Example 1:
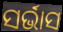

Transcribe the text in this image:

ସର୍ଭାସ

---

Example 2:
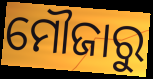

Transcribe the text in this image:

ମୌଜାରୁ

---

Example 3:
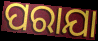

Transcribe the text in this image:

ପରାଯା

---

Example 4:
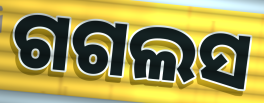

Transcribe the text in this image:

ଗଗଲସ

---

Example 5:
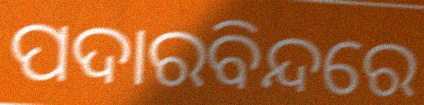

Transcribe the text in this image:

ପଦାରବିନ୍ଦରେ